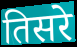
तिसरे